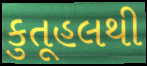
કુતૂહલથી